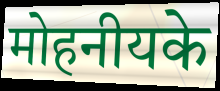
मोहनीयके